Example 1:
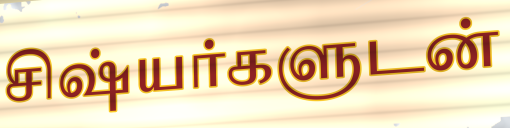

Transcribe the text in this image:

சிஷ்யர்களுடன்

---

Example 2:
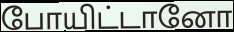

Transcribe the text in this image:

போயிட்டானோ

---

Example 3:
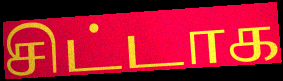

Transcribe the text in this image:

சிட்டாக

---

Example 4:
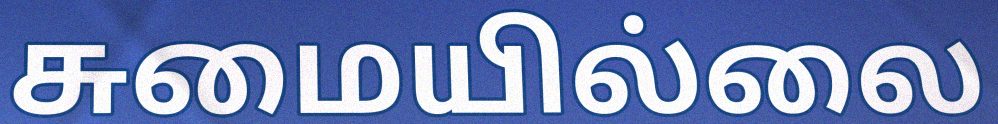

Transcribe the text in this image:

சுமையில்லை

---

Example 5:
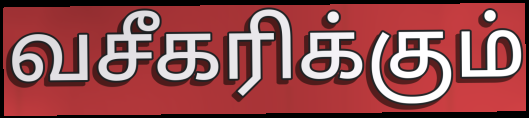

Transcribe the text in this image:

வசீகரிக்கும்